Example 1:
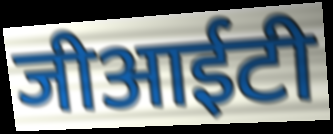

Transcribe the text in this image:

जीआईटी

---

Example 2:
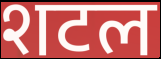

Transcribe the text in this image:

शटल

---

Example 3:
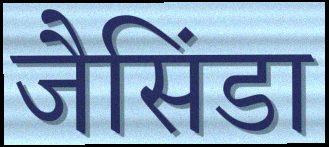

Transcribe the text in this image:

जैसिंडा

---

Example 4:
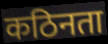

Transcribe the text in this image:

कठिनता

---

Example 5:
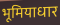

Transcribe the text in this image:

भूमियाधार